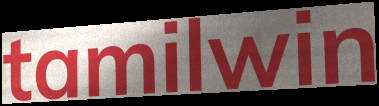
tamilwin